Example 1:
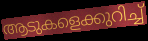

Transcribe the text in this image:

ആടുകളെക്കുറിച്ച്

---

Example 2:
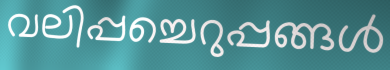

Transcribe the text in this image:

വലിപ്പച്ചെറുപ്പങ്ങൾ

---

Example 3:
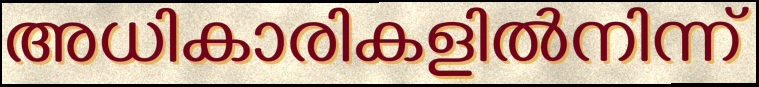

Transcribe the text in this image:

അധികാരികളിൽനിന്ന്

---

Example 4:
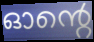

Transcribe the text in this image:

ഓന്റെ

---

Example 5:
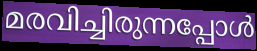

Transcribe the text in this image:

മരവിച്ചിരുന്നപ്പോൾ